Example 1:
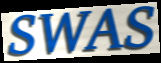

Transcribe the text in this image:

SWAS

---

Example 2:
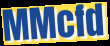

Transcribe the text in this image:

MMcfd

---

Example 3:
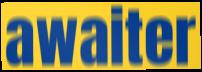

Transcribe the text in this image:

awaiter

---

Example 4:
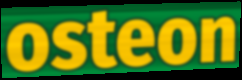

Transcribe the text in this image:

osteon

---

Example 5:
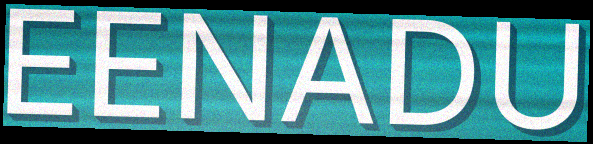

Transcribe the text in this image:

EENADU